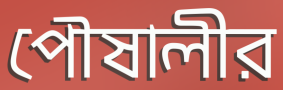
পৌষালীর